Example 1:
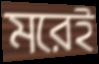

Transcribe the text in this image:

মরেই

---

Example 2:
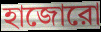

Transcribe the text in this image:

হাজোরো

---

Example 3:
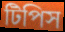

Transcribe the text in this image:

টিপিস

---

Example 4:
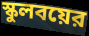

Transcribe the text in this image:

স্কুলবয়ের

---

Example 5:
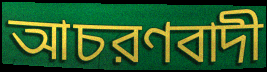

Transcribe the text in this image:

আচরণবাদী